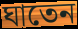
ঘাতেন